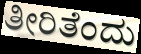
ತೀರಿತೆಂದು